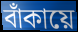
বাঁকায়ে